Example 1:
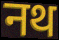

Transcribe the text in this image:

नथ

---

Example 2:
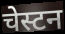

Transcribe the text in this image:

चेस्टन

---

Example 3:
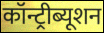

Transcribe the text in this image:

कॉन्ट्रीब्यूशन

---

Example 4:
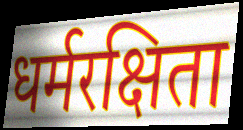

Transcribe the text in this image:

धर्मरक्षिता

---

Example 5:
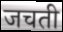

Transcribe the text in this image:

जचती